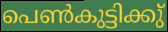
പെൺകുട്ടിക്കു്